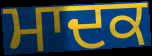
ਮਾਦਕ